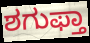
ಶಗುಫ್ತಾ